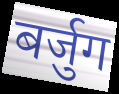
बर्जुग